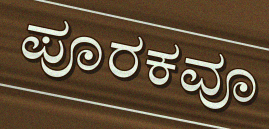
ಪೂರಕವೂ